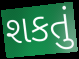
શકતું